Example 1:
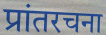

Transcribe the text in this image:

प्रांतरचना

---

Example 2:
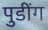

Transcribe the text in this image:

पुडींग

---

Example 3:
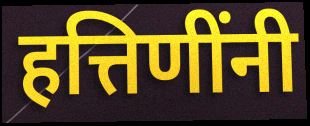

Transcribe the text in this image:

हत्तिणींनी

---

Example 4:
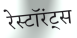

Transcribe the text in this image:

रेस्टॉरंट्स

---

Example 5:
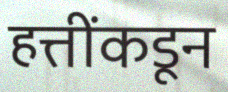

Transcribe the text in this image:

हत्तींकडून